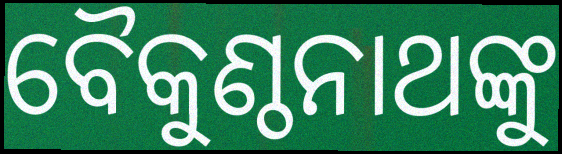
ବୈକୁଣ୍ଠନାଥଙ୍କୁ